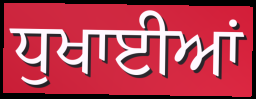
ਧੁਖਾਈਆਂ